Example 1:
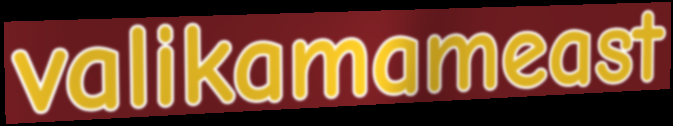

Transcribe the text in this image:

valikamameast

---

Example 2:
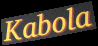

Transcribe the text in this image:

Kabola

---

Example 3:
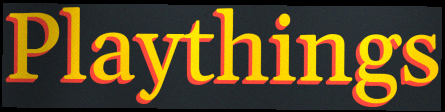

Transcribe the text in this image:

Playthings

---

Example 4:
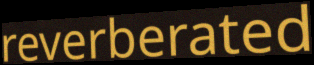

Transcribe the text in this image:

reverberated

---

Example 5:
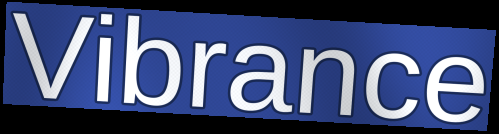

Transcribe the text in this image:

Vibrance